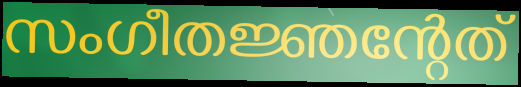
സംഗീതജ്ഞന്റേത്